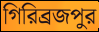
গিরিব্রজপুর